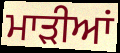
ਮਾੜੀਆਂ